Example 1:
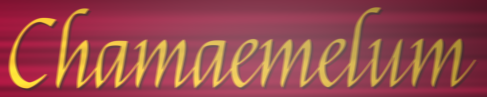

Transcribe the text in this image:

Chamaemelum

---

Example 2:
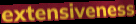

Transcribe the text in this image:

extensiveness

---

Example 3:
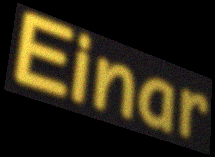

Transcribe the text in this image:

Einar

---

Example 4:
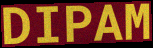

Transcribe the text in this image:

DIPAM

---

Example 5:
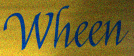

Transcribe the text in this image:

Wheen